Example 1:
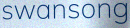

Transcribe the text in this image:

swansong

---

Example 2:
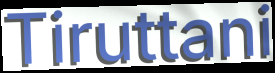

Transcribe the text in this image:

Tiruttani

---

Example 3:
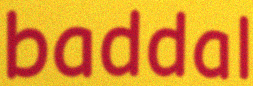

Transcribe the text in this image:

baddal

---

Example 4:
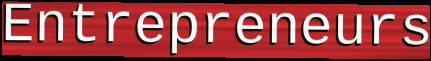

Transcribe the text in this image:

Entrepreneurs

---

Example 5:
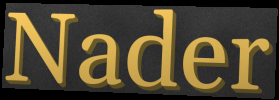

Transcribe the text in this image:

Nader